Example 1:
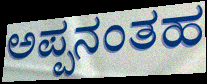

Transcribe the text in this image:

ಅಪ್ಪನಂತಹ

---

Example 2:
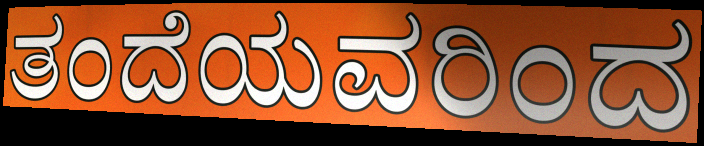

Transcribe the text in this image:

ತಂದೆಯವರಿಂದ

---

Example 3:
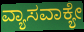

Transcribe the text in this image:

ವ್ಯಾಸವಾಕ್ಯೇ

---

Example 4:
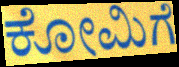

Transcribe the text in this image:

ಕೋಮಿಗೆ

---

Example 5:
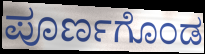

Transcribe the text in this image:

ಪೂರ್ಣಗೊಂಡ